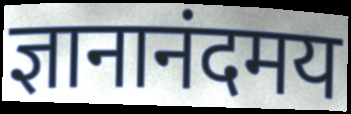
ज्ञानानंदमय